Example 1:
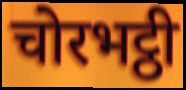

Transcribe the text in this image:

चोरभट्ठी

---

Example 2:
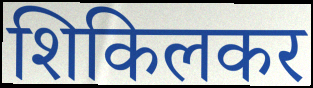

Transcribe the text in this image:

शिकिलकर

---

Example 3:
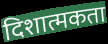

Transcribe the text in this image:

दिशात्मकता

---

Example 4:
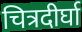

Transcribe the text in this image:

चित्रदीर्घा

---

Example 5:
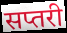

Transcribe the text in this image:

सप्तरी